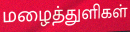
மழைத்துளிகள்